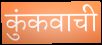
कुंकवाची